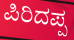
ಪಿರಿದಪ್ಪ